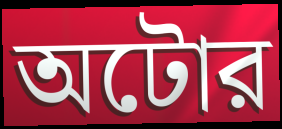
অটোর